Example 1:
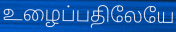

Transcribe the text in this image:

உழைப்பதிலேயே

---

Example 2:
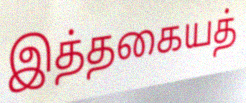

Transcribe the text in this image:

இத்தகையத்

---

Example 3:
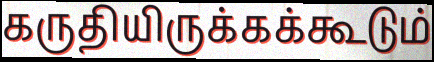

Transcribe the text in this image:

கருதியிருக்கக்கூடும்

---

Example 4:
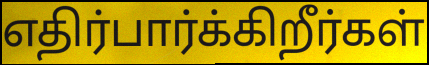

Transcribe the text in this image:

எதிர்பார்க்கிறீர்கள்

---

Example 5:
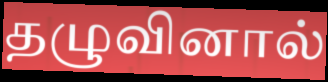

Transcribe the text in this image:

தழுவினால்